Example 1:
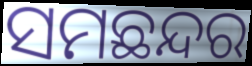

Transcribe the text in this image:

ସମଛନ୍ଦର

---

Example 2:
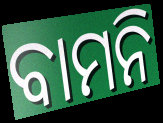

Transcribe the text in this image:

ବାମନି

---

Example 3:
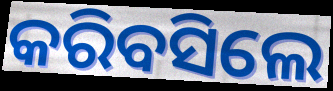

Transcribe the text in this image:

କରିବସିଲେ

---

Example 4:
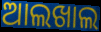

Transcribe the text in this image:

ଆଲଖାଲ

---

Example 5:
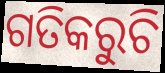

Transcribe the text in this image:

ଗତିକରୁଚି